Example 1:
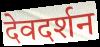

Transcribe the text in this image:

देवदर्शन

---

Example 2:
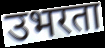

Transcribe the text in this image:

उभरता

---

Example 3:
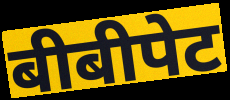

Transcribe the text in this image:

बीबीपेट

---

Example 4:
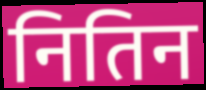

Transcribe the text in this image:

नितिन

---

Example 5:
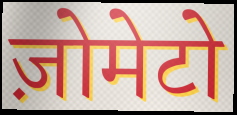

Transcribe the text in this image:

ज़ोमेटो